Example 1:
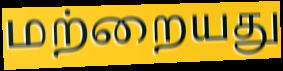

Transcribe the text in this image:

மற்றையது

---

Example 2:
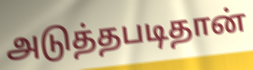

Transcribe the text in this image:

அடுத்தபடிதான்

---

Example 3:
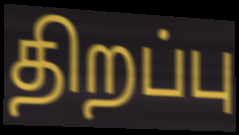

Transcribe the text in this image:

திறப்பு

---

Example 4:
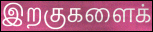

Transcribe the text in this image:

இறகுகளைக்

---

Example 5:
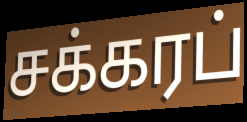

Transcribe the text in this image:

சக்கரப்